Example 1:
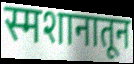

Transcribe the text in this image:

स्मशानातून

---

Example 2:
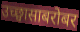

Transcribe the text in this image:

उच्छ्वासाबरोबर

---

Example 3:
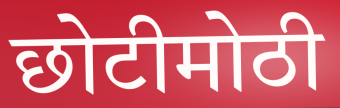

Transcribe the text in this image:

छोटीमोठी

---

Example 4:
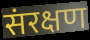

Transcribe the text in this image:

संरक्षण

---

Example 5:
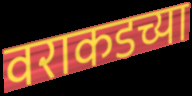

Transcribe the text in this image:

वराकडच्या